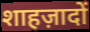
शाहज़ादों